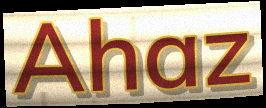
Ahaz